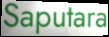
Saputara